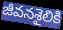
జీవనశైలికి